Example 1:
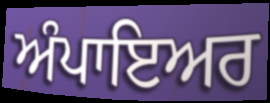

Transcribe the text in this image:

ਅੰਪਾਇਅਰ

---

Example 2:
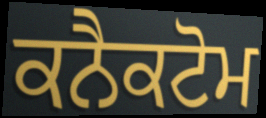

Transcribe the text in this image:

ਕਨੈਕਟੋਮ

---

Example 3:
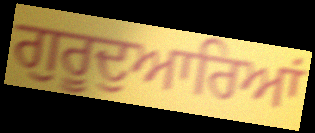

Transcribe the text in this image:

ਗੁਰੂਦੁਆਰਿਆਂ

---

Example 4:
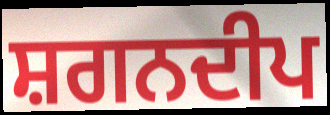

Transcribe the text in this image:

ਸ਼ਗਨਦੀਪ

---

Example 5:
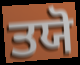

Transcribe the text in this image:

ਤਯੋ